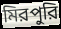
মিরপুরি